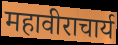
महावीराचार्य